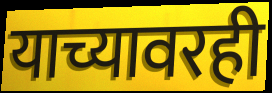
याच्यावरही